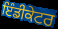
ਇੰਡੀਕੇਟਰ